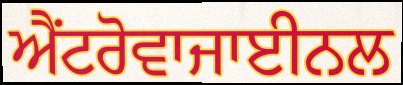
ਐਂਟਰੋਵਾਜਾਈਨਲ